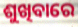
ଶୁଖିବାରେ